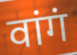
वांगं